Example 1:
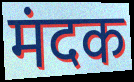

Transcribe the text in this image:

मंदक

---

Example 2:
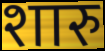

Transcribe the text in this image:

शारु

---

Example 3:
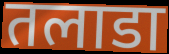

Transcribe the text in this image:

तलाडा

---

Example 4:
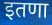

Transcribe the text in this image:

इतणा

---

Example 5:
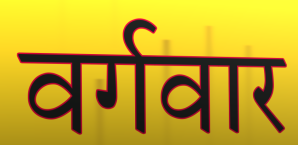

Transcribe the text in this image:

वर्गवार